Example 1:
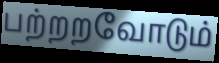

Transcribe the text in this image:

பற்றறவோடும்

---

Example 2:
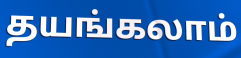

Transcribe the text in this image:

தயங்கலாம்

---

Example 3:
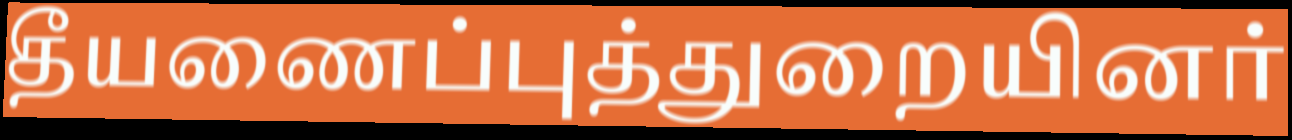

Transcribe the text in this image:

தீயணைப்புத்துறையினர்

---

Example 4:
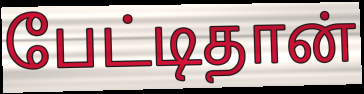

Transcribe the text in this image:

பேட்டிதான்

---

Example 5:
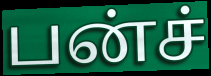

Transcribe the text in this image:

பன்ச்